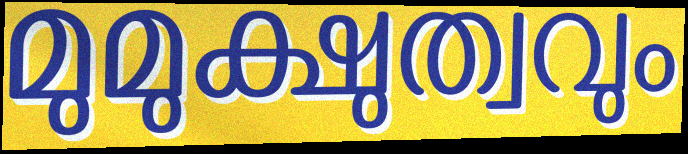
മുമുക്ഷുത്വവും